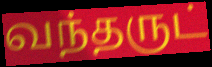
வந்தருட்